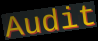
Audit